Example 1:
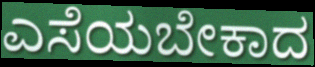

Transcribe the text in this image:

ಎಸೆಯಬೇಕಾದ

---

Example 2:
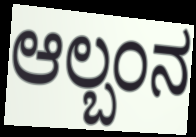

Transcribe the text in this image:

ಆಲ್ಬಂನ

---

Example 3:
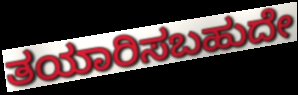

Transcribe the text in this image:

ತಯಾರಿಸಬಹುದೇ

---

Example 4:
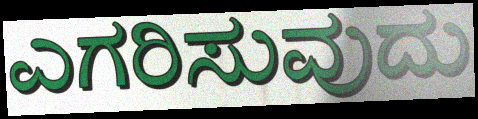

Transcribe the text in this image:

ಎಗರಿಸುವುದು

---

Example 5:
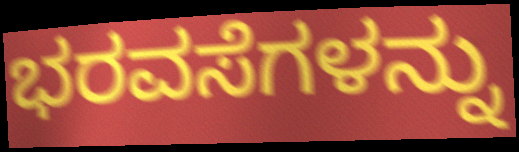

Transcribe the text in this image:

ಭರವಸೆಗಳನ್ನು